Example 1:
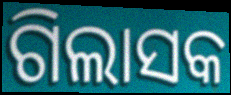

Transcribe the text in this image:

ଗିଲାସକ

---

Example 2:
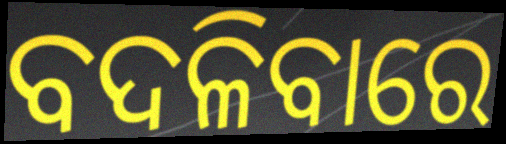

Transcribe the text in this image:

ବଦଳିବାରେ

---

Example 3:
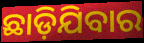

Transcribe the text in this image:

ଛାଡ଼ିଯିବାର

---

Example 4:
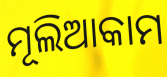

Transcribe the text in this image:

ମୂଲିଆକାମ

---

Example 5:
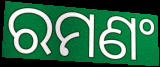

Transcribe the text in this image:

ରମଣଂ